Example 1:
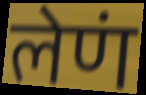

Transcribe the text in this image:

लेणं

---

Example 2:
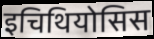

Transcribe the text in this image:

इचिथियोसिस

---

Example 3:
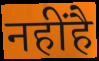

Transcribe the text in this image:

नहींहै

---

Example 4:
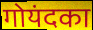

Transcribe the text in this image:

गोयंदका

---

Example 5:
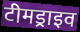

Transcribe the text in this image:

टीमड्राइव